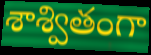
శాశ్వితంగా